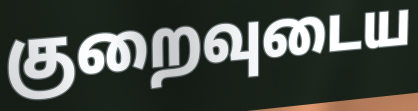
குறைவுடைய